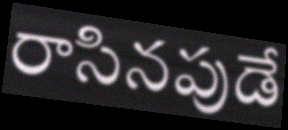
రాసినపుడే